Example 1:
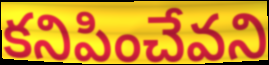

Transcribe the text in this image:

కనిపించేవని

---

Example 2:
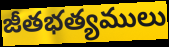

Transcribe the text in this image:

జీతభత్యములు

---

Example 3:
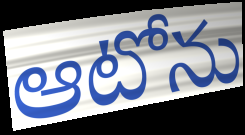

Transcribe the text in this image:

ఆటోను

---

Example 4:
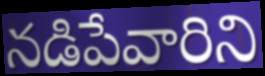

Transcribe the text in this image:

నడిపేవారిని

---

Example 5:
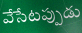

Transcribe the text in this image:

వేసేటప్పుడు